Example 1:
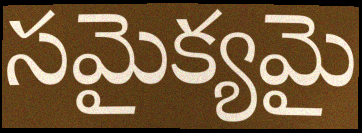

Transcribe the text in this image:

సమైక్యమై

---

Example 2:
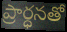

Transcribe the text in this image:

ప్రార్ధనతో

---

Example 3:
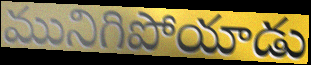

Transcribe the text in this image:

మునిగిపోయాడు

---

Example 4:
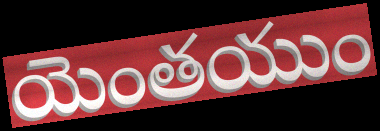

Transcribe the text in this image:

యెంతయుం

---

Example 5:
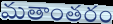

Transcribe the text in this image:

మతాంతరం